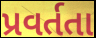
પ્રવર્તતા